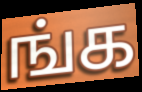
ங்க